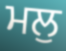
ਮਲੁ